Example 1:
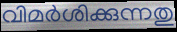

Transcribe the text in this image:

വിമർശിക്കുന്നതു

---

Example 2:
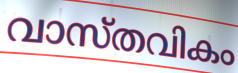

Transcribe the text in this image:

വാസ്തവികം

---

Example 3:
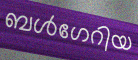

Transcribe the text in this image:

ബൾഗേറിയ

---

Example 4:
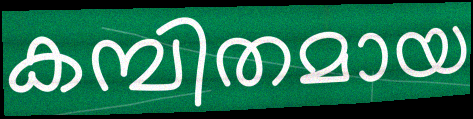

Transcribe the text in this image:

കമ്പിതമായ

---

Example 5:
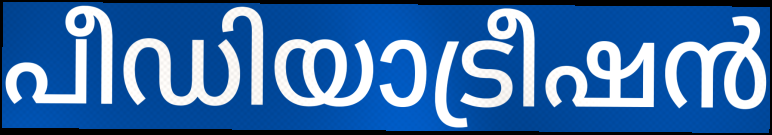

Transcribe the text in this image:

പീഡിയാട്രീഷൻ